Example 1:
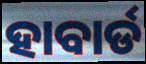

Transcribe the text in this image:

ହାବାର୍ଡ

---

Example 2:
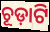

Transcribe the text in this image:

ଚୂଡ଼ାଟି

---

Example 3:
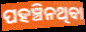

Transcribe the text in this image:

ପହଞ୍ଚିନଥିବା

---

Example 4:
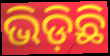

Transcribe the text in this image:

ଭିଡ଼ିଛି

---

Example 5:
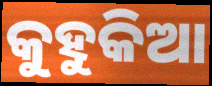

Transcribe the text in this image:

କୁହୁକିଆ